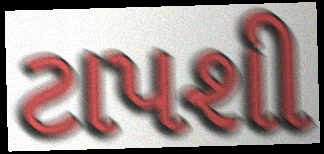
ટાપશી